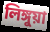
লিঙ্গুয়া